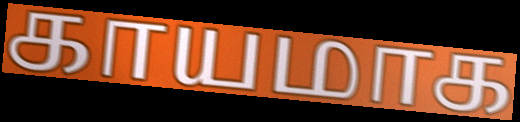
காயமாக